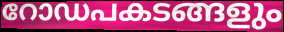
റോഡപകടങ്ങളും